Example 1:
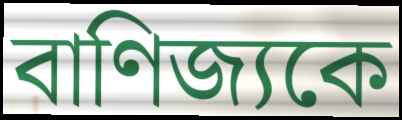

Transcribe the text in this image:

বাণিজ্যকে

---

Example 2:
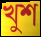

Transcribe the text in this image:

খুশ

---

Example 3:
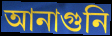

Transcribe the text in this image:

আনাগুনি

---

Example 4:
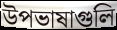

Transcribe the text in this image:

উপভাষাগুলি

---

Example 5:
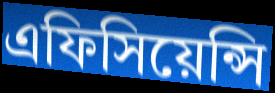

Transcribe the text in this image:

এফিসিয়েন্সি